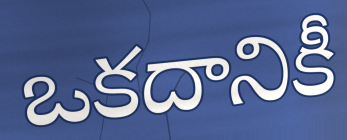
ఒకదానికీ